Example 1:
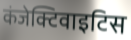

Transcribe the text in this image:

कंजेक्टिवाइटिस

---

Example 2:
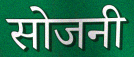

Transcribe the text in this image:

सोजनी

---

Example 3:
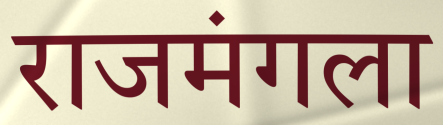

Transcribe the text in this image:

राजमंगला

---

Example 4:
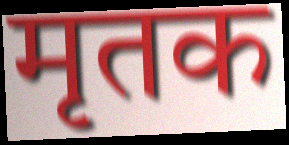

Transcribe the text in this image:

मृतक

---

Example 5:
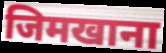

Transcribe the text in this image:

जिमखाना